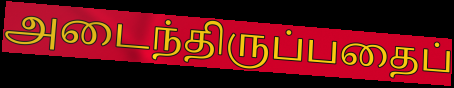
அடைந்திருப்பதைப்